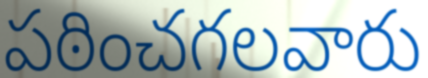
పఠించగలవారు